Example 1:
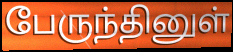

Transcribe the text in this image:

பேருந்தினுள்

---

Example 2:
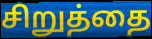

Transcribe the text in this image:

சிறுத்தை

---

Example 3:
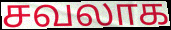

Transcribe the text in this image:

சவலாக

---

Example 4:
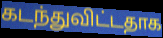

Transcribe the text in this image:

கடந்துவிட்டதாக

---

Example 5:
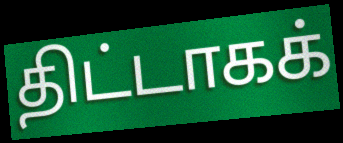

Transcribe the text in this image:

திட்டாகக்